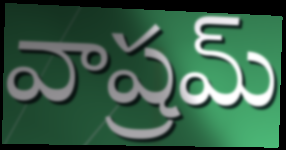
వాష్రమ్